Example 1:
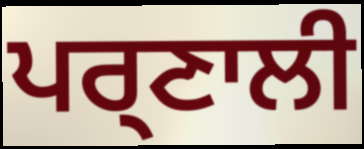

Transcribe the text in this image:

ਪਰ੍ਣਾਲੀ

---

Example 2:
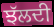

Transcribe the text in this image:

ਝੱਲਦੀ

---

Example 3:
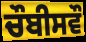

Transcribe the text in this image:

ਚੌਬੀਸਵੌ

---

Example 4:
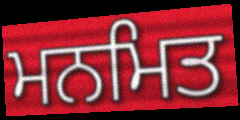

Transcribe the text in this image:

ਮਨਮਿਤ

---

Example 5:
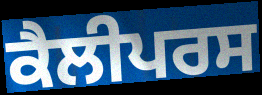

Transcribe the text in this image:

ਕੈਲੀਪਰਸ